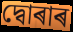
দ্বোৰাৰ